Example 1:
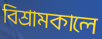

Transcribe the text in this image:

বিশ্রামকালে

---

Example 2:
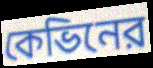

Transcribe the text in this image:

কেভিনের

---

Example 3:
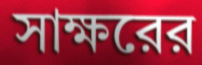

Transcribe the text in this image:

সাক্ষরের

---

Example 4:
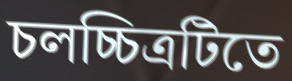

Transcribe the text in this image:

চলচ্চিত্রটিতে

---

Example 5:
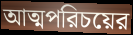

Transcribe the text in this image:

আত্মপরিচয়ের